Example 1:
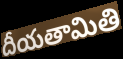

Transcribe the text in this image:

దీయతామితి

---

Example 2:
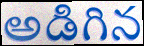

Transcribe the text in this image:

అడిగిన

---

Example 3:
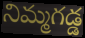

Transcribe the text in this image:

నిమ్మగడ్డ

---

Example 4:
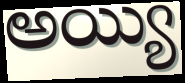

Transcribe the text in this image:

అయ్యి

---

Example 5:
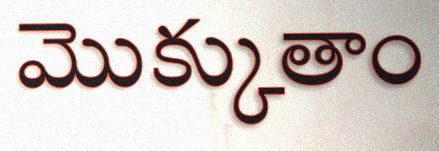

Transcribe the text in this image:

మొక్కుతాం